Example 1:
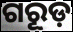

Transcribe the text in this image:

ଗରୂଡ଼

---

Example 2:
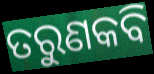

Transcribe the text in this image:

ତରୁଣକବି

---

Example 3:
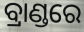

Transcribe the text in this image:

ବ୍ରାଣ୍ଡରେ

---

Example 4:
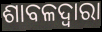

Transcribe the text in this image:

ଶାବଳଦ୍ୱାରା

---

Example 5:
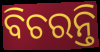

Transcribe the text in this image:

ବିଚରନ୍ତି